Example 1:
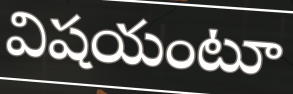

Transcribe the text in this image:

విషయంటూ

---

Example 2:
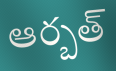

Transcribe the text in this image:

ఆర్బత్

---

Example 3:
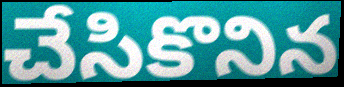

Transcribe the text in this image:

చేసికొనిన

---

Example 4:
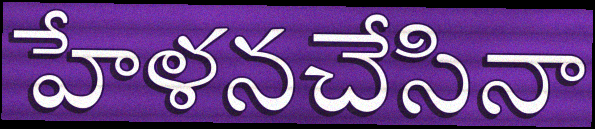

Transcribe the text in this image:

హేళనచేసినా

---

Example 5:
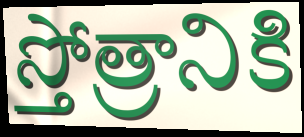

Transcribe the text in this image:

స్తోత్రానికి